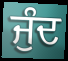
ਜੁੰਦ